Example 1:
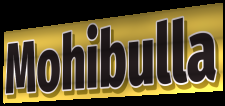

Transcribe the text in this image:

Mohibulla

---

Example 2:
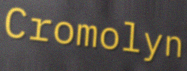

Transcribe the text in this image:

Cromolyn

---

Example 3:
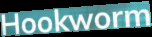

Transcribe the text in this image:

Hookworm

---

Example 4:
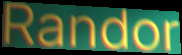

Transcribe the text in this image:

Randor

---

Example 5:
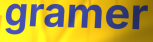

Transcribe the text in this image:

gramer